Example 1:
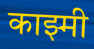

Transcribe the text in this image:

काझ्मी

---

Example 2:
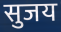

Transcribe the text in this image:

सुजय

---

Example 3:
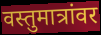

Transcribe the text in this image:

वस्तुमात्रांवर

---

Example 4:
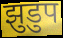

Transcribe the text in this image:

झुडुप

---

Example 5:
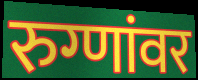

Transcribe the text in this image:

रुग्णांवर